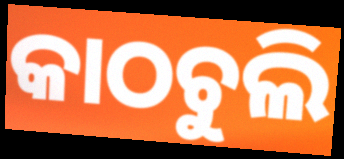
କାଠଚୁଲି